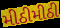
મીઠીમીઠી